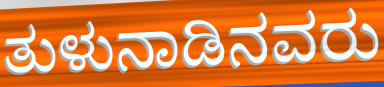
ತುಳುನಾಡಿನವರು